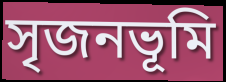
সৃজনভূমি